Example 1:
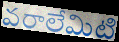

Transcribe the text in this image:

వరాలేమిటి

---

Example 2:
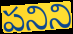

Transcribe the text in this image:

పనిని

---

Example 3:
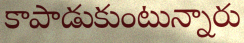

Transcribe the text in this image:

కాపాడుకుంటున్నారు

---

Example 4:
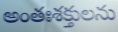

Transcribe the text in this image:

అంతఃశక్తులను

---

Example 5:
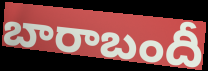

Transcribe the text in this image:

బారాబందీ